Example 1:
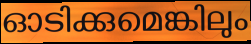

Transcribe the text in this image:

ഓടിക്കുമെങ്കിലും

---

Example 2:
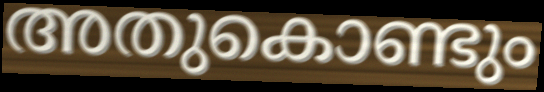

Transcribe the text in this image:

അതുകൊണ്ടും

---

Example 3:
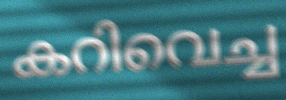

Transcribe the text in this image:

കറിവെച്ച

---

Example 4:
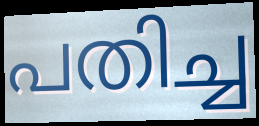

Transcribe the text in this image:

പതിച്ച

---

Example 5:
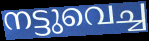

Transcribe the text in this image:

നട്ടുവെച്ച